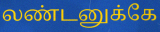
லண்டனுக்கே